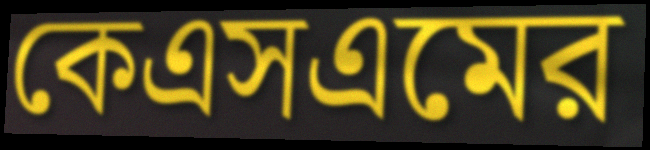
কেএসএমের